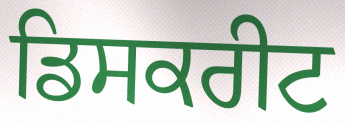
ਡਿਸਕਰੀਟ